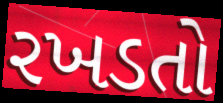
રખડતો